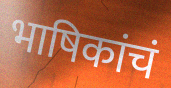
भाषिकांचं